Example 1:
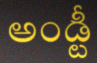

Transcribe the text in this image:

అండ్టీ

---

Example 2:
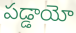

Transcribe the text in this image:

పడ్డాయో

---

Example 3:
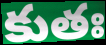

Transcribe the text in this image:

కుతః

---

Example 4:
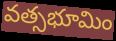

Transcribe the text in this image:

వత్సభూమిం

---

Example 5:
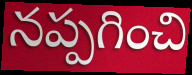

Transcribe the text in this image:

నప్పగించి